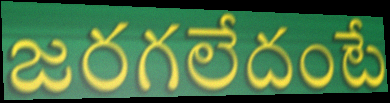
జరగలేదంటే